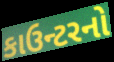
કાઉન્ટરનો